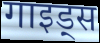
गाइड्स